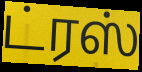
ட்ரஸ்